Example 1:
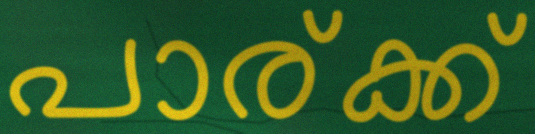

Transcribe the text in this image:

പാര്ക്ക്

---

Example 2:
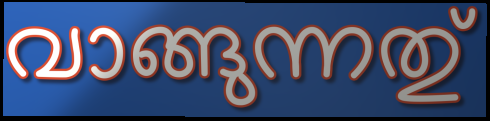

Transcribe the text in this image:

വാങ്ങുന്നതു്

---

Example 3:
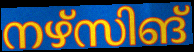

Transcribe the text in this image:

നഴ്സിങ്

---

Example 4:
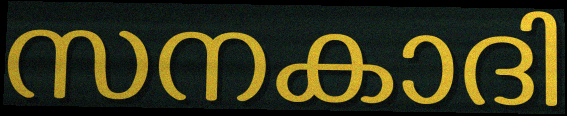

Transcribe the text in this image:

സനകാദി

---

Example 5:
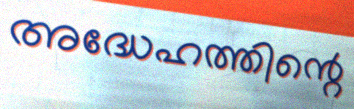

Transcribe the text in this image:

അദ്ധേഹത്തിന്റെ